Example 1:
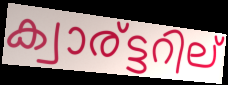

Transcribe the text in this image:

ക്വാര്ട്ടറില്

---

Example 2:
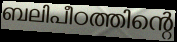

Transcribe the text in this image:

ബലിപീഠത്തിന്റെ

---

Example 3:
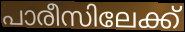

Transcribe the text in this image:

പാരീസിലേക്ക്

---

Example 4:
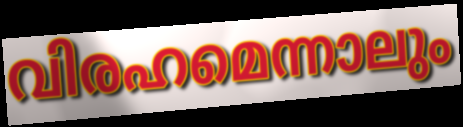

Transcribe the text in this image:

വിരഹമെന്നാലും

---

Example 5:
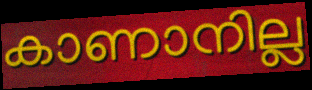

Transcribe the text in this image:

കാണാനില്ല